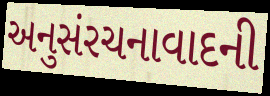
અનુસંરચનાવાદની